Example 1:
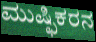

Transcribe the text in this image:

ಮುಷ್ಫಿಕರನ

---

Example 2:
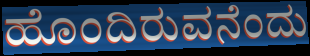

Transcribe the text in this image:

ಹೊಂದಿರುವನೆಂದು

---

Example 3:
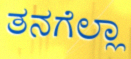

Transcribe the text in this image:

ತನಗೆಲ್ಲಾ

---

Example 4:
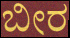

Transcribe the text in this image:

ಬೀರ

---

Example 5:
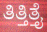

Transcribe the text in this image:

ತಿತ್ತಿತ್ತೈ